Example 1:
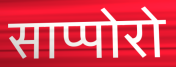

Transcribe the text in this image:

साप्पोरो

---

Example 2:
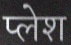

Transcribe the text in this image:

प्लेश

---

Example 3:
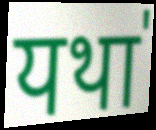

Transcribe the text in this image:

यथा॑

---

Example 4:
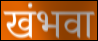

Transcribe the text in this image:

खंभवा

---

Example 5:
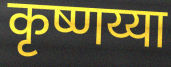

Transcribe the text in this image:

कृष्णय्या